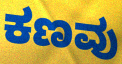
ಕಣವು